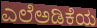
ಎಲೆಅಡಿಕೆಯ